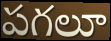
పగలూ